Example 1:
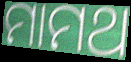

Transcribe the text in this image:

ମାମଥ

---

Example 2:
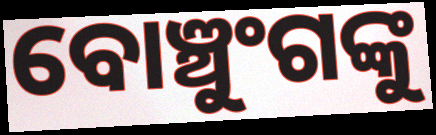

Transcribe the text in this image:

ବୋଞ୍ଚୁଂଗଙ୍କୁ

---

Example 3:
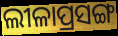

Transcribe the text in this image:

ଲୀଳାପ୍ରସଙ୍ଗ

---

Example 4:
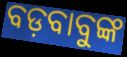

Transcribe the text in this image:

ବଡ଼ବାବୁଙ୍କ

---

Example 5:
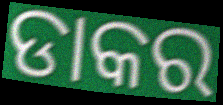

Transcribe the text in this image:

ଡାକର